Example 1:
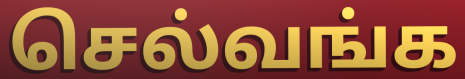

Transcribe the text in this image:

செல்வங்க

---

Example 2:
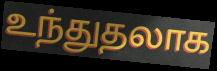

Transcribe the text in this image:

உந்துதலாக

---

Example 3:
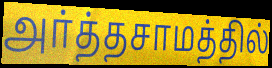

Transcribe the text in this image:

அர்த்தசாமத்தில்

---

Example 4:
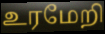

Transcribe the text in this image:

உரமேறி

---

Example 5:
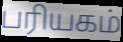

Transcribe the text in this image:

பரியகம்